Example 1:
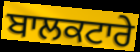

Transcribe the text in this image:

ਬਾਲਕਟਾਰੇ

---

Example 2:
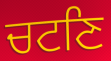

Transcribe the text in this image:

ਚਟਣਿ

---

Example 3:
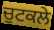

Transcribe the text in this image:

ਚੁਟਕਲੇ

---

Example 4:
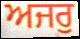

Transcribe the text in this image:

ਅਜਰੁ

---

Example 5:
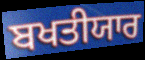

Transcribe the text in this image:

ਬਖਤੀਯਾਰ